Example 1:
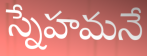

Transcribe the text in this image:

స్నేహమనే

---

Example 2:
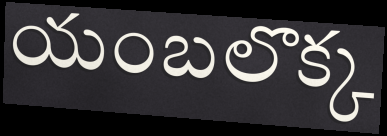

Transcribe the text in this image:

యంబలొక్క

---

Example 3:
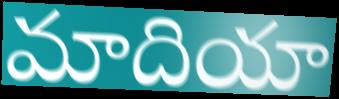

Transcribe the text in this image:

మాదియా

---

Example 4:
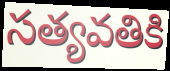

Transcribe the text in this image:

సత్యవతికి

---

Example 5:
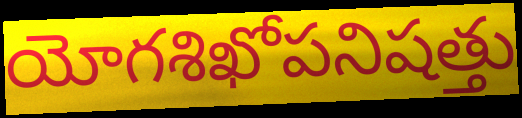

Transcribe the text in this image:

యోగశిఖోపనిషత్తు